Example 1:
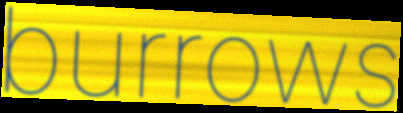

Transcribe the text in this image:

burrows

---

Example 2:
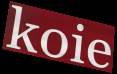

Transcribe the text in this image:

koie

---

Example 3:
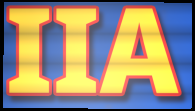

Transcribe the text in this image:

IIA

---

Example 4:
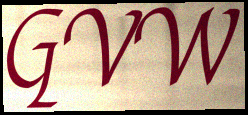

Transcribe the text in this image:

GVW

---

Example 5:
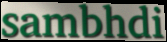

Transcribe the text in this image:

sambhdi